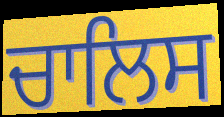
ਚਾਲਿਸ